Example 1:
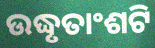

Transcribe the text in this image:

ଉଦ୍ଧୃତାଂଶଟି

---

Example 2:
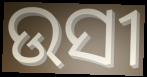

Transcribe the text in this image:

ଉସୀ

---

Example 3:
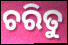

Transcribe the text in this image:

ଚରିତୁ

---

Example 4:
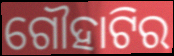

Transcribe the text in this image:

ଗୌହାଟିର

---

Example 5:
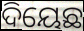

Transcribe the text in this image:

ଦିୟେଛ